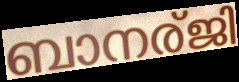
ബാനര്ജി